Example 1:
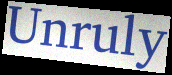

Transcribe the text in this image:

Unruly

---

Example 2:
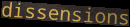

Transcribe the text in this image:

dissensions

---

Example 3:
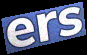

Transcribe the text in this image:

ers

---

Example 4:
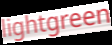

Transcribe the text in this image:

lightgreen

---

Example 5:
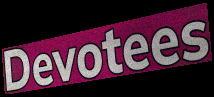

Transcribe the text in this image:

Devotees